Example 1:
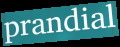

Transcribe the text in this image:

prandial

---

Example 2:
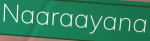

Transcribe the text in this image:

Naaraayana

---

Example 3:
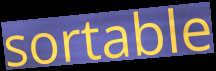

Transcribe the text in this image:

sortable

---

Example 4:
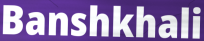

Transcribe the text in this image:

Banshkhali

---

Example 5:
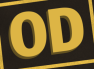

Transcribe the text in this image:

OD